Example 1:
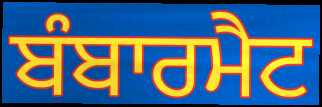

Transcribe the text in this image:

ਬੰਬਾਰਮੈਟ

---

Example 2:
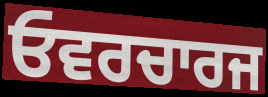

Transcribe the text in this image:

ਓਵਰਚਾਰਜ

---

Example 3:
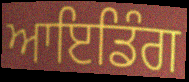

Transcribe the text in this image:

ਆਇਡਿੰਗ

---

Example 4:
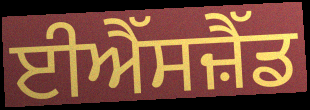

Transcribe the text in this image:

ਈਐੱਸਜ਼ੈੱਡ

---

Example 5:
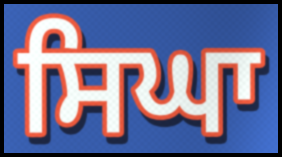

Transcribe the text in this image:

ਸਿਘਾ